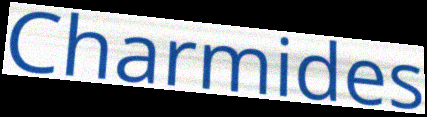
Charmides